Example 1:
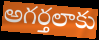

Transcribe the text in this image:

అగర్తలాకు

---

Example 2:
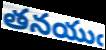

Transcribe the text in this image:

తనయుఁ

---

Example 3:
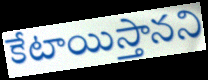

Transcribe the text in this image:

కేటాయిస్తానని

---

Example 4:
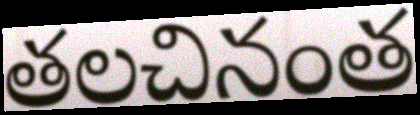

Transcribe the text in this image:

తలచినంత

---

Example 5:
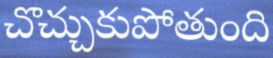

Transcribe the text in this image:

చొచ్చుకుపోతుంది